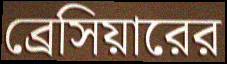
ব্রেসিয়ারের